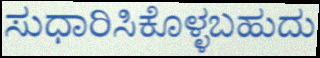
ಸುಧಾರಿಸಿಕೊಳ್ಳಬಹುದು